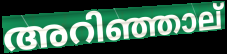
അറിഞ്ഞാല്